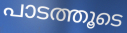
പാടത്തൂടെ